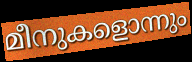
മീനുകളൊന്നും